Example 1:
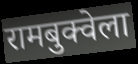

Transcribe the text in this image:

रामबुक्वेला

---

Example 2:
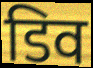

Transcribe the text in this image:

डिव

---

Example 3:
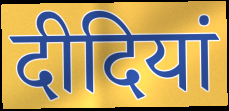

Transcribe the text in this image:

दीदियां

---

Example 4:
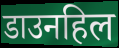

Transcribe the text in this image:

डाउनहिल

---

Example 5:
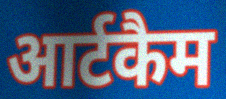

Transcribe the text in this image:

आर्टकैम